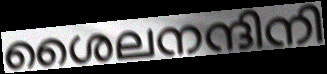
ശൈലനന്ദിനി